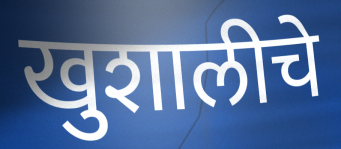
खुशालीचे